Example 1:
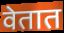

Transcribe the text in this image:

वेतात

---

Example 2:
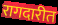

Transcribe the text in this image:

रागदारीत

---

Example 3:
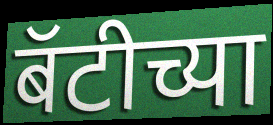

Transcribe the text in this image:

बॅटीच्या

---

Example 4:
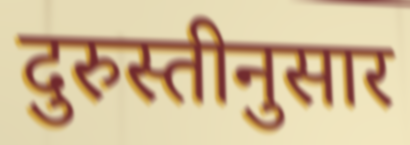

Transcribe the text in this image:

दुरुस्तीनुसार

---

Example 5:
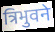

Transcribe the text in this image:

त्रिभुवने